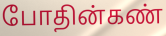
போதின்கண்